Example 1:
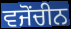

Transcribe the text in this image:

ਵਜੋਂਚੀਨ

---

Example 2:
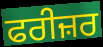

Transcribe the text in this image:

ਫਰੀਜ਼ਰ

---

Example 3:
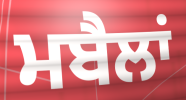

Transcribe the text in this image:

ਮਬੈਲਾਂ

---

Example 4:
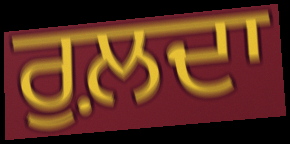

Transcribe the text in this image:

ਰੁਲ਼ਦਾ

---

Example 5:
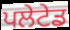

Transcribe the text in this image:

ਪਲੇਟੇਡ